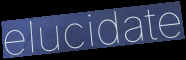
elucidate